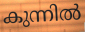
കുന്നിൽ